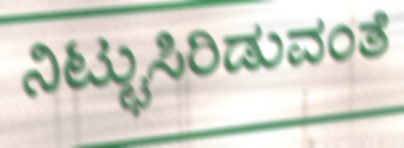
ನಿಟ್ಟುಸಿರಿಡುವಂತೆ